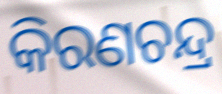
କିରଣଚନ୍ଦ୍ର